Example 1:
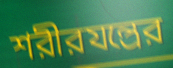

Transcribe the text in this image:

শরীরযন্ত্রের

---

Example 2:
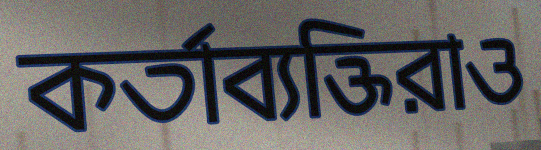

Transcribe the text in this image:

কর্তাব্যক্তিরাও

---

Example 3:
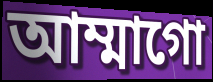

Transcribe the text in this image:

আম্মাগো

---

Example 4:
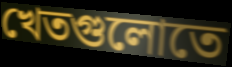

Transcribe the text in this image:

খেতগুলোতে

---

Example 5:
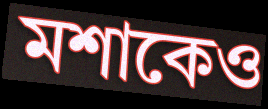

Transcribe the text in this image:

মশাকেও